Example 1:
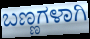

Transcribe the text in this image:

ಬಣ್ಣಗಳಾಗಿ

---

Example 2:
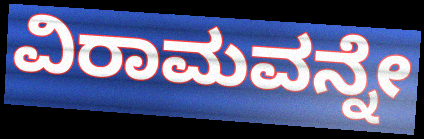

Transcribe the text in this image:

ವಿರಾಮವನ್ನೇ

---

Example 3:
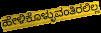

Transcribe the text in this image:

ಹೇಳಿಕೊಳ್ಳುವಂತಿರಲಿಲ್ಲ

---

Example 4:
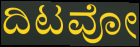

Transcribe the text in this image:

ದಿಟವೋ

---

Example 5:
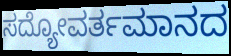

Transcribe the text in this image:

ಸದ್ಯೋವರ್ತಮಾನದ